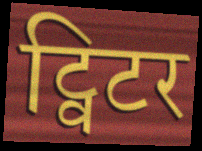
ट्विटर